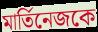
মার্তিনেজকে